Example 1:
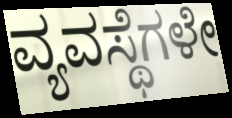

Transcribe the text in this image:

ವ್ಯವಸ್ಥೆಗಳೇ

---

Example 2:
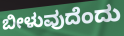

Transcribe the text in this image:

ಬೀಳುವುದೆಂದು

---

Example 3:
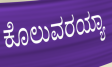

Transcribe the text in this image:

ಕೊಲುವರಯ್ಯಾ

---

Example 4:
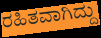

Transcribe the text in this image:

ರಹಿತವಾಗಿದ್ದು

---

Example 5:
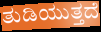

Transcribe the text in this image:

ತುಡಿಯುತ್ತದೆ